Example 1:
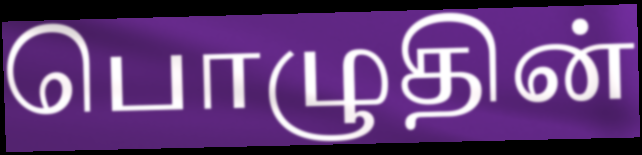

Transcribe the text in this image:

பொழுதின்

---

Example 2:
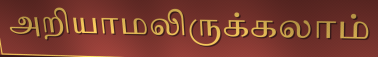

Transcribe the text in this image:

அறியாமலிருக்கலாம்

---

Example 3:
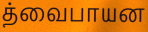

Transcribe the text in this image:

த்வைபாயன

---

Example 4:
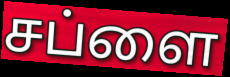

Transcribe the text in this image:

சப்ளை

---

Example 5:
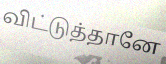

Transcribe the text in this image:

விட்டுத்தானே